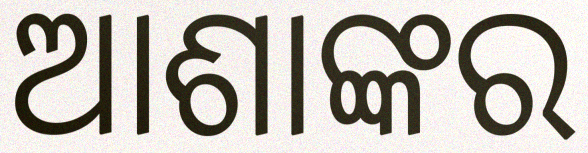
ଆଶାଙ୍କର